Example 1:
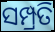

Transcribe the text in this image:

ସମ୍ପ୍ରତି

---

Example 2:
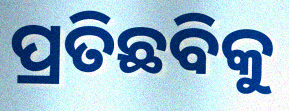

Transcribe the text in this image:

ପ୍ରତିଛବିକୁ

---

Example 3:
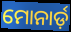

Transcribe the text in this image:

ମୋନାର୍ଡ଼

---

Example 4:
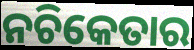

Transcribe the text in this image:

ନଚିକେତାର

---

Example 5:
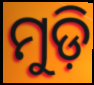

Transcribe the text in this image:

ମୁଡ଼ି